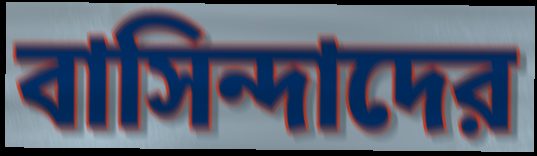
বাসিন্দাদের